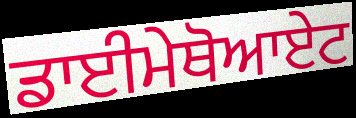
ਡਾਈਮੇਥੋਆਏਟ